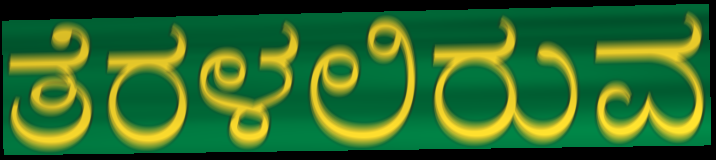
ತೆರಳಲಿರುವ